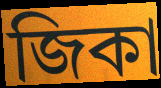
জিকা